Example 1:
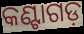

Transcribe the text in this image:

କଣ୍ଟାଗଡ଼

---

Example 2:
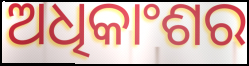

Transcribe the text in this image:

ଅଧିକାଂଶର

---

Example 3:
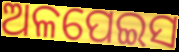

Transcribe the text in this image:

ଅଳପେଇସ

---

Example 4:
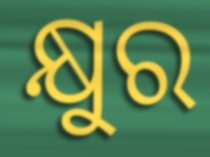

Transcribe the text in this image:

କ୍ଷୁର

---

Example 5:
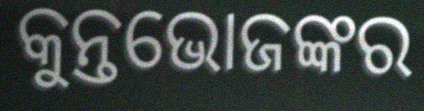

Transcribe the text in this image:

କୁନ୍ତଭୋଜଙ୍କର